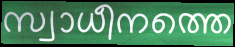
സ്വാധീനത്തെ